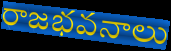
రాజభవనాలు